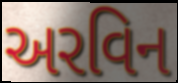
અરવિન